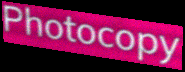
Photocopy